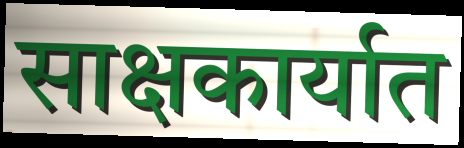
साक्षकार्यात